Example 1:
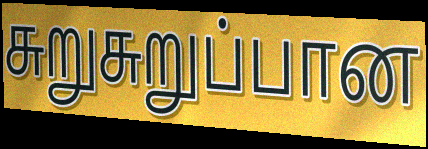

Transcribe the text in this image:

சுறுசுறுப்பான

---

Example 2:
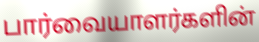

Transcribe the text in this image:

பார்வையாளர்களின்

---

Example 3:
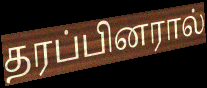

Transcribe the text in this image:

தரப்பினரால்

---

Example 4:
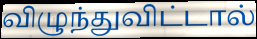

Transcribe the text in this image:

விழுந்துவிட்டால்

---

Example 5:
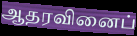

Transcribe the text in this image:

ஆதரவினைப்